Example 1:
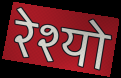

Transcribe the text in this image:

रेश्यो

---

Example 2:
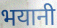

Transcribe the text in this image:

भयानी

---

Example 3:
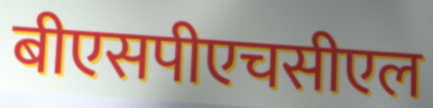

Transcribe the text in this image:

बीएसपीएचसीएल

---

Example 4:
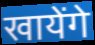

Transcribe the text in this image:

खायेंगे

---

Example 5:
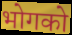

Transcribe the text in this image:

भोगको